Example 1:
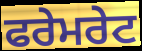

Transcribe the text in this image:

ਫਰੇਮਰੇਟ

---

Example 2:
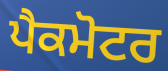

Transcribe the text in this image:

ਪੈਕਮੋਟਰ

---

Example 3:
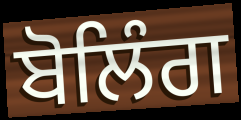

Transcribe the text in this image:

ਬੋਲਿੰਗ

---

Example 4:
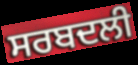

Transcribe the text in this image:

ਸਰਬਦਲੀ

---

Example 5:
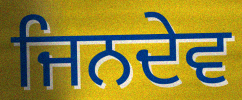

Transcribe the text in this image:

ਜਿਨਦੇਵ